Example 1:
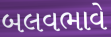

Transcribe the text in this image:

બલવભાવે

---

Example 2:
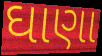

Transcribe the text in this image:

ઘાણા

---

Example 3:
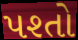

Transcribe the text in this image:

પશ્તો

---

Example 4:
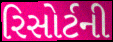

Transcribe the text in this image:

રિસોર્ટની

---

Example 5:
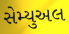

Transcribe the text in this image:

સેમ્યુઅલ